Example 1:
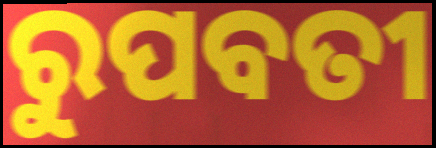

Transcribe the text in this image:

ରୁପବତୀ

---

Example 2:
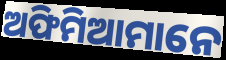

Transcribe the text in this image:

ଅଫିମିଆମାନେ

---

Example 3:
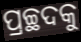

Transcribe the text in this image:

ପ୍ରଚ୍ଛଦକୁ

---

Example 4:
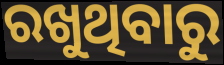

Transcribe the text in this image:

ରଖୁଥିବାରୁ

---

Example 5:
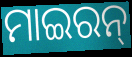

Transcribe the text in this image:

ମାଇରନ୍